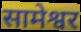
सामेश्वर